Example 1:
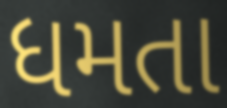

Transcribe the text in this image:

ધમતા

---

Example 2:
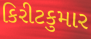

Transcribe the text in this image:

કિરીટકુમાર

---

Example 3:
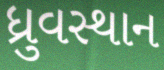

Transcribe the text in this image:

ધ્રુવસ્થાન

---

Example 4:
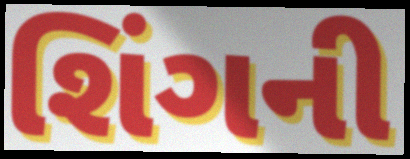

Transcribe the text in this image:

શિંગની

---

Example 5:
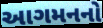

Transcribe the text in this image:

આગમનનો